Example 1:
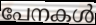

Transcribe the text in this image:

പേനകൾ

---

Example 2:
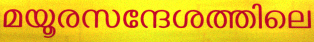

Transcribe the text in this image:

മയൂരസന്ദേശത്തിലെ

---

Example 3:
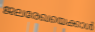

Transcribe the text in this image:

ജലരേഖയെക്കാൾ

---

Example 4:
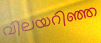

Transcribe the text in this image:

വിലയറിഞ്ഞ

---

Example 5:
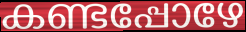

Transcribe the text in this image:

കണ്ടപ്പോഴേ